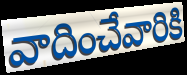
వాదించేవారికి